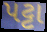
પટ્ટા